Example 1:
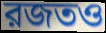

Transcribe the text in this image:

রজতও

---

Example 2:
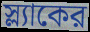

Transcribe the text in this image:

স্ল্যাকের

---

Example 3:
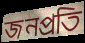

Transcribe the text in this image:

জনপ্রতি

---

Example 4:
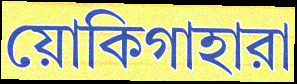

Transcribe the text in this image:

য়োকিগাহারা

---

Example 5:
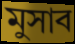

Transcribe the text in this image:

মুসাব